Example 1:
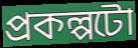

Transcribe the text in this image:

প্ৰকল্পটো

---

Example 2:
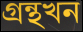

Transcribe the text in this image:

গ্ৰন্থখন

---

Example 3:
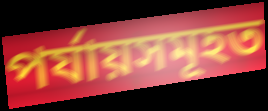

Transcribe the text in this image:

পৰ্যায়সমূহত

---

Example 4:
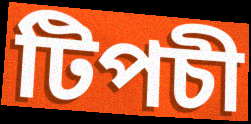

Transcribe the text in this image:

টিপচী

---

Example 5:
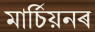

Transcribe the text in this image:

মাৰ্চিয়নৰ